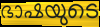
ഭാഷയുടെ